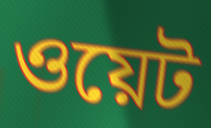
ওয়েট